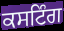
ਕਸਟਿੰਗ